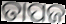
ତାପଜ